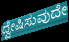
ದ್ವೇಷಿಸುವುದೇ